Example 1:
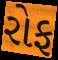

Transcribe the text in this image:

રોફ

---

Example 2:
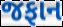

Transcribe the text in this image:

જફાન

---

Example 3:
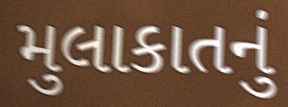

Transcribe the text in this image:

મુલાકાતનું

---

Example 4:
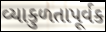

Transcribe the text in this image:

વ્યાકુળતાપૂર્વક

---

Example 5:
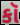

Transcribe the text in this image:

કૉ